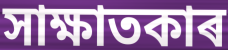
সাক্ষাতকাৰ